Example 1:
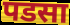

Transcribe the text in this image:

पडसा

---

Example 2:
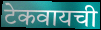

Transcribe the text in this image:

टेकवायची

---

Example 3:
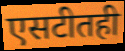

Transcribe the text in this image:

एसटीतही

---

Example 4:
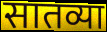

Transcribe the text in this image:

सातव्या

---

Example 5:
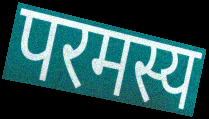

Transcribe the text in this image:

परमस्य